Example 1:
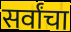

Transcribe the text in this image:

सर्वांचा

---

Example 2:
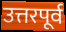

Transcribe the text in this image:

उत्तरपूर्व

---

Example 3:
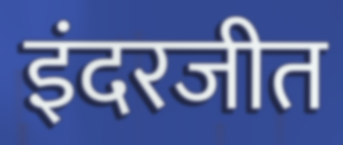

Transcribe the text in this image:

इंदरजीत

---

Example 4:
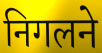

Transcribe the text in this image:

निगलने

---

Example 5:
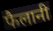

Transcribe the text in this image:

फैलानी